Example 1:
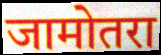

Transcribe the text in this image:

जामोतरा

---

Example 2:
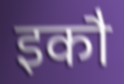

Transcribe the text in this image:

इकौ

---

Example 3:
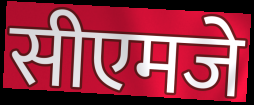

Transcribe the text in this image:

सीएमजे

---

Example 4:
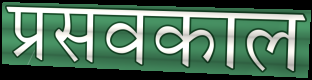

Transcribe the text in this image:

प्रसवकाल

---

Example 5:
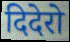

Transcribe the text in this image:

दिदेरो